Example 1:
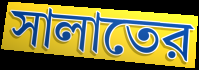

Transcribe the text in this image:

সালাতের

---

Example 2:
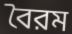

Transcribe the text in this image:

বৈরম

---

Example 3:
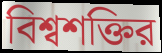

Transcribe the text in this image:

বিশ্বশক্তির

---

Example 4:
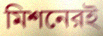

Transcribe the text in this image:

মিশনেরই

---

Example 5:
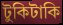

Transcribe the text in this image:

টুকিটাকি